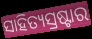
ସାହିତ୍ୟସ୍ରଷ୍ଟାର